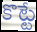
కొట్టే